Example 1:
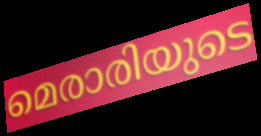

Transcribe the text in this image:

മെരാരിയുടെ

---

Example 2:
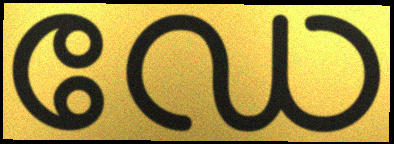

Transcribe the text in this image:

ഡേ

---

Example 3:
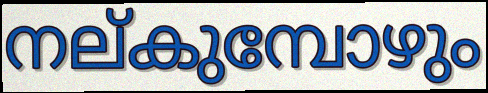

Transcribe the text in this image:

നല്കുമ്പോഴും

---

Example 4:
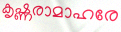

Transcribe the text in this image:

കൃഷ്ണരാമാഹരേ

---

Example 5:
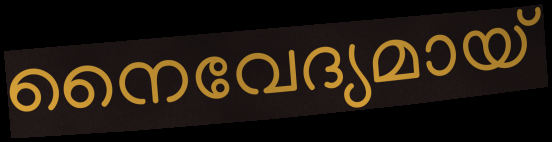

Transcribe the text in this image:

നൈവേദ്യമായ്